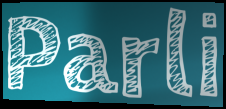
Parli